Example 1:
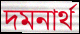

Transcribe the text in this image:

দমনার্থ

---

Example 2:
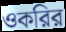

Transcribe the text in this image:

ওকরির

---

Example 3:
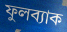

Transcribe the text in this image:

ফুলব্যাক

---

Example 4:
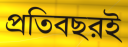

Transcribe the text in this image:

প্রতিবছরই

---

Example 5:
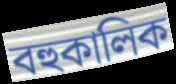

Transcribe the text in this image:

বহুকালিক